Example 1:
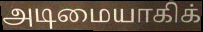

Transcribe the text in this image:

அடிமையாகிக்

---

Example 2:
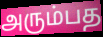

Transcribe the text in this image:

அரும்பத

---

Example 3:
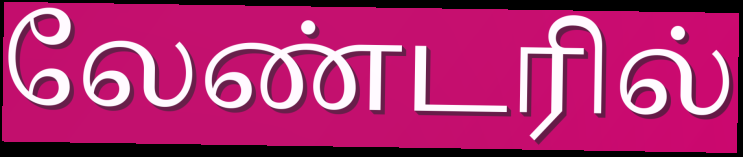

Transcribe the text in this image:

லேண்டரில்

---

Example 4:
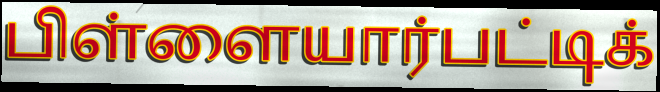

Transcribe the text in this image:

பிள்ளையார்பட்டிக்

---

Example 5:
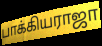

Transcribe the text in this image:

பாக்கியராஜா